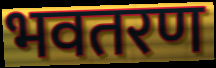
भवतरण